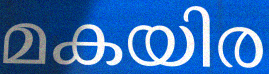
മകയിര